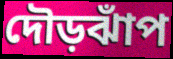
দৌড়ঝাঁপ